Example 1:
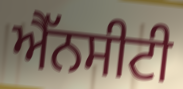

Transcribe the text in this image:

ਐੱਨਸੀਟੀ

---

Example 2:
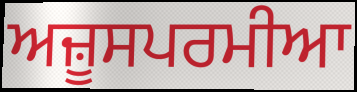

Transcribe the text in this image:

ਅਜ਼ੂਸਪਰਮੀਆ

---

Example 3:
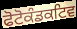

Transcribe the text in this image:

ਫੋਟੋਕੰਡਕਟਿਵ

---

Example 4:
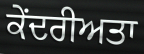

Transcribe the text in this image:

ਕੇਂਦਰੀਅਤਾ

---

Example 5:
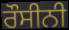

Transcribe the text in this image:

ਰੌਸੀਨੀ